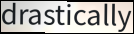
drastically